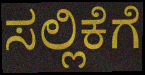
ಸಲ್ಲಿಕೆಗೆ